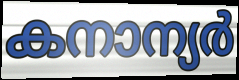
കനാന്യർ